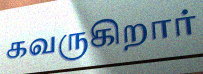
கவருகிறார்